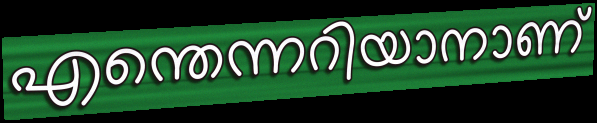
എന്തെന്നറിയാനാണ്